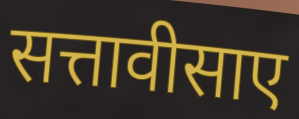
सत्तावीसाए